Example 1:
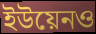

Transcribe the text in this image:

ইউয়েনও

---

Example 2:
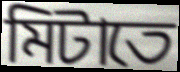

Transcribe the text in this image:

মিটাতে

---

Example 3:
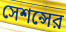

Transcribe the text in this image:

সেশন্সের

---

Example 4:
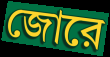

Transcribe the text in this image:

জোরে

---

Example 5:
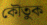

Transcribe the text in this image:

কৌতুক